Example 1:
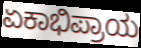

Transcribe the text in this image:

ಏಕಾಭಿಪ್ರಾಯ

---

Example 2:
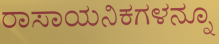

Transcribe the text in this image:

ರಾಸಾಯನಿಕಗಳನ್ನೂ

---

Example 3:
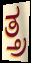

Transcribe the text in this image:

ತ್ತ್ರ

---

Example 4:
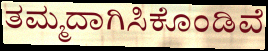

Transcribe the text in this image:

ತಮ್ಮದಾಗಿಸಿಕೊಂಡಿವೆ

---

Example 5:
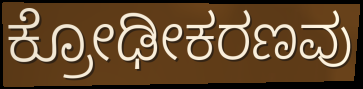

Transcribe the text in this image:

ಕ್ರೋಢೀಕರಣವು